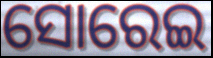
ସୋରେଇ